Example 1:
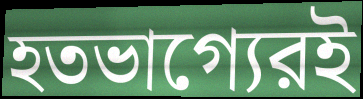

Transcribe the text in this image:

হতভাগ্যেরই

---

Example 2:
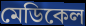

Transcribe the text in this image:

মেডিকেল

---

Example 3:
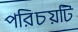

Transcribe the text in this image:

পরিচয়টি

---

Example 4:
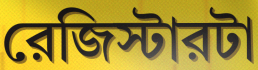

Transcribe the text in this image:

রেজিস্টারটা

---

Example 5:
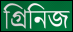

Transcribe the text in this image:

গ্রিনিজ